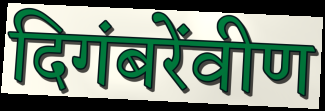
दिगंबरेंवीण